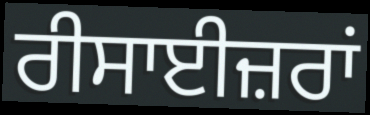
ਰੀਸਾਈਜ਼ਰਾਂ